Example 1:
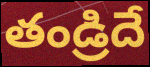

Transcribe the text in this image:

తండ్రిదే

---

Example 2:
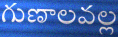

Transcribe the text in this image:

గుణాలవల్ల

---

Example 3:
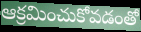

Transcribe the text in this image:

ఆక్రమించుకోవడంతో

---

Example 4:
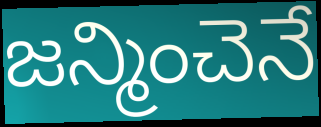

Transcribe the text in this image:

జన్మించెనే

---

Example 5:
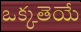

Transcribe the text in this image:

ఒక్కతెయే